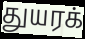
துயரக்